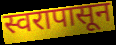
स्वरापासून